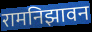
रामनिझावन